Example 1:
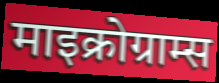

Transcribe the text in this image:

माइक्रोग्राम्स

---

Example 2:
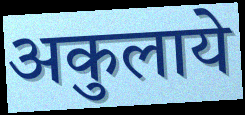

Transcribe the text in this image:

अकुलाये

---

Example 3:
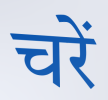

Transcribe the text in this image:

चरें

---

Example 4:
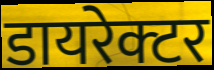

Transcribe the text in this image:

डायरेक्‍टर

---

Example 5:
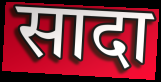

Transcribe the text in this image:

सादा